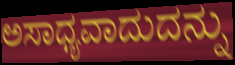
ಅಸಾಧ್ಯವಾದುದನ್ನು